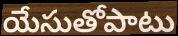
యేసుతోపాటు